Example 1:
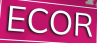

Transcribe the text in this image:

ECOR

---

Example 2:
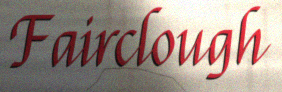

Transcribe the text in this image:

Fairclough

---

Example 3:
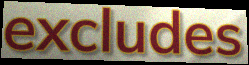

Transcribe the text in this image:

excludes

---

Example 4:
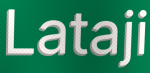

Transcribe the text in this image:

Lataji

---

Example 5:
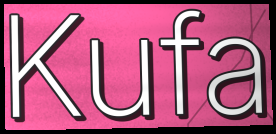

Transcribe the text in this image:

Kufa